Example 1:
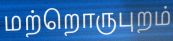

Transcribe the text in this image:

மற்றொருபுறம்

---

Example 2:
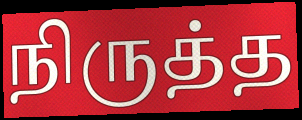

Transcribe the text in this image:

நிருத்த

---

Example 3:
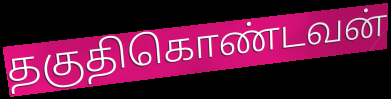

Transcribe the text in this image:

தகுதிகொண்டவன்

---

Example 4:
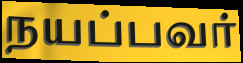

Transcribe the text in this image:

நயப்பவர்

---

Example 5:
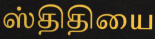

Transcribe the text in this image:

ஸ்திதியை